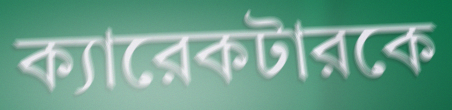
ক্যারেকটারকে